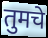
तुमचे